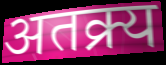
अतक्र्य